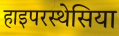
हाइपरस्थेसिया